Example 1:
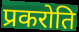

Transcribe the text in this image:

प्रकरोति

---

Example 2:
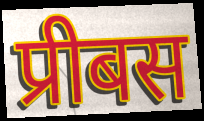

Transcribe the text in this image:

प्रीबस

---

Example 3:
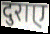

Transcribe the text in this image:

दुराए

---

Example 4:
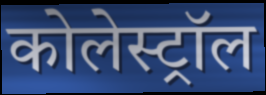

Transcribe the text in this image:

कोलेस्‍ट्रॉल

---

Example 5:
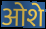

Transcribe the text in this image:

ओशे